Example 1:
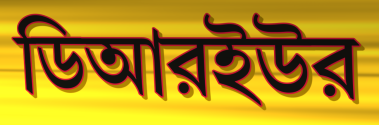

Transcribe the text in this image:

ডিআরইউর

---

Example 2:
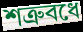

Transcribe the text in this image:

শত্রুবধে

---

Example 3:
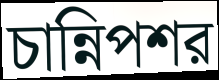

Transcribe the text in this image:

চান্নিপশর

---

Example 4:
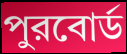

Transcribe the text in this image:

পুরবোর্ড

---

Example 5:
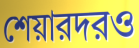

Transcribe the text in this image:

শেয়ারদরও